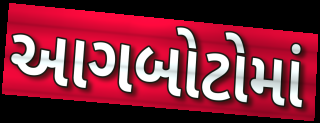
આગબોટોમાં